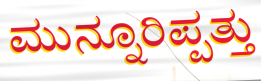
ಮುನ್ನೂರಿಪ್ಪತ್ತು